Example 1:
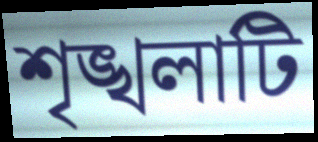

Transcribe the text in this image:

শৃঙ্খলাটি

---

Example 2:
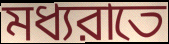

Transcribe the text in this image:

মধ্যরাতে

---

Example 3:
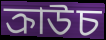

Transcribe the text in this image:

ক্রাউচ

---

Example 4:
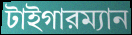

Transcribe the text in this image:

টাইগারম্যান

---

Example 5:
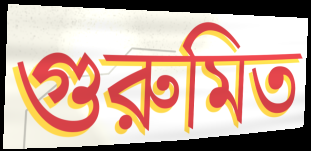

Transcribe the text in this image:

গুরুমিত